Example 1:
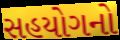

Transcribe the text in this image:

સહયોગનો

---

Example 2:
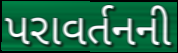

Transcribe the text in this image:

પરાવર્તનની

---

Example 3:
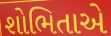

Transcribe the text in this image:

શોભિતાએ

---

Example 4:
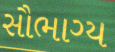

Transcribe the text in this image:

સૌભાગ્ય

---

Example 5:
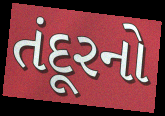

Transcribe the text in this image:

તંદૂરનો